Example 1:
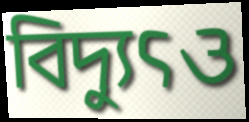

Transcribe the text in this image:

বিদ্যুৎও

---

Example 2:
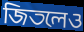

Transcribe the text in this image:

জিতলেও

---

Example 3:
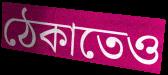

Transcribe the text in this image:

ঠেকাতেও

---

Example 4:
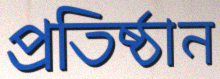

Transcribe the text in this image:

প্রতিষ্ঠান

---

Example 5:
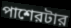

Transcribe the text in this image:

পাশেরটার